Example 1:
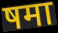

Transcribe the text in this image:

षमा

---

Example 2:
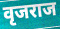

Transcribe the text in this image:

वृजराज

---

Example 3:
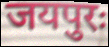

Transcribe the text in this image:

जयपुरः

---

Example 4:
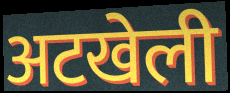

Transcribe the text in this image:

अटखेली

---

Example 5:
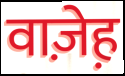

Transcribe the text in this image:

वाज़ेह़